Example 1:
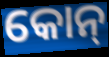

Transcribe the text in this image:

କୋନ୍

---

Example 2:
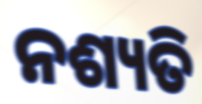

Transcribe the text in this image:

ନଶ୍ୟତି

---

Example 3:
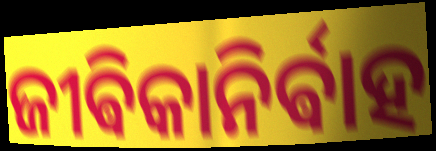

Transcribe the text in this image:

ଜୀଵିକାନିର୍ଵାହ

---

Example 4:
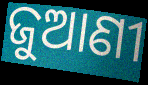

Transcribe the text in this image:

ଜୁଆଣୀ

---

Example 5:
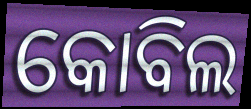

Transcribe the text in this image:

କୋବିଲ